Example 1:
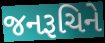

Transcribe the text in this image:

જનરૂચિને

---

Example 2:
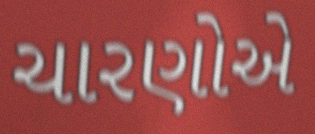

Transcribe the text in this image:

ચારણોએ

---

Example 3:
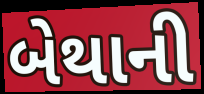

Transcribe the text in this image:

બેથાની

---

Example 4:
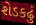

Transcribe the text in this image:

શેડકઢું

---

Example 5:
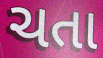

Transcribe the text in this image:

ચતા